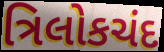
ત્રિલોકચંદ